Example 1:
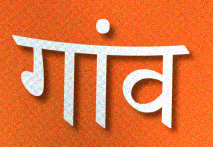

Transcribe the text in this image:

गांव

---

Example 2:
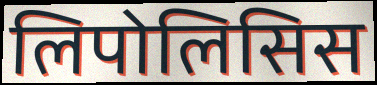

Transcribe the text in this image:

लिपोलिसिस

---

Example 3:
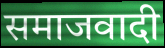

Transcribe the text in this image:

समाजवादी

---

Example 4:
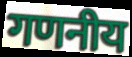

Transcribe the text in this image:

गणनीय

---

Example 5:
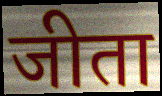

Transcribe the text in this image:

जीता